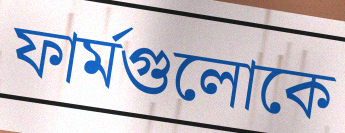
ফার্মগুলোকে